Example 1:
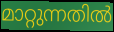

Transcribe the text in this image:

മാറ്റുന്നതിൽ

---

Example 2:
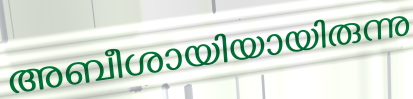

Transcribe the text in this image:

അബീശായിയായിരുന്നു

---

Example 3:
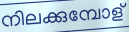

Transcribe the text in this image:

നിലക്കുമ്പോള്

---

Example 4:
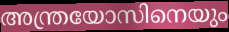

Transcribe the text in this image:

അന്ത്രയോസിനെയും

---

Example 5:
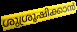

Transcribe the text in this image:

ശുശ്രൂഷിക്കാൻ